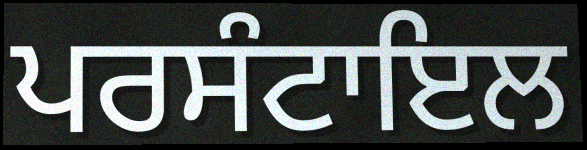
ਪਰਸੰਟਾਇਲ